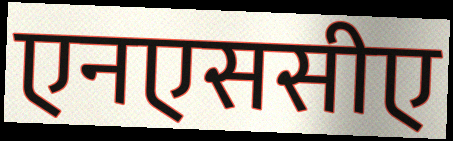
एनएससीए